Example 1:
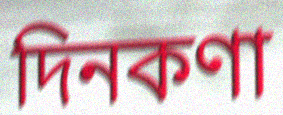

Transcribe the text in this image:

দিনকণা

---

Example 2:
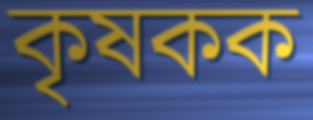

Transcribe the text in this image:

কৃষকক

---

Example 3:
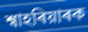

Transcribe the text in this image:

শ্বাহৰিয়াৰক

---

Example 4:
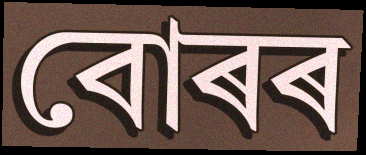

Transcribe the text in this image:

বোৰৰ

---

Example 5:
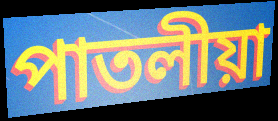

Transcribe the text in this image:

পাতলীয়া